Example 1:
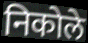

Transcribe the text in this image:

निकोले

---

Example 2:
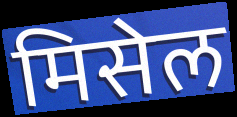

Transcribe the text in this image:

मिसेल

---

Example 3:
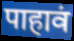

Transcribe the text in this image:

पाहावं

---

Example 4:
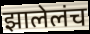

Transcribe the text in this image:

झालेलंच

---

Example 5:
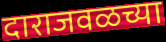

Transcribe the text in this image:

दाराजवळच्या